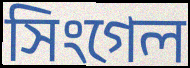
সিংগেল